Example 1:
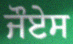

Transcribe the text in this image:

ਜੌਏਸ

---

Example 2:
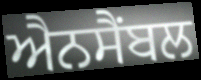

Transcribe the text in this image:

ਐਨਸੈਂਬਲ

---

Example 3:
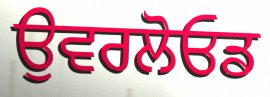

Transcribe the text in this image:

ਉਵਰਲੋਓਡ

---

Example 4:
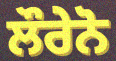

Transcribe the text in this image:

ਲੌਰੇਨੋ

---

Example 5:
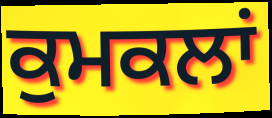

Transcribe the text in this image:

ਕੁਮਕਲਾਂ